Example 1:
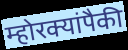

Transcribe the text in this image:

म्होरक्यांपैकी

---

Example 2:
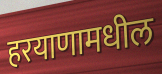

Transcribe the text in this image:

हरयाणामधील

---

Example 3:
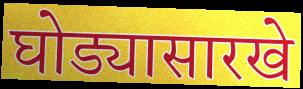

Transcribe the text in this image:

घोड्यासारखे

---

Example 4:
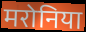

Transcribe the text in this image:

मरोनिया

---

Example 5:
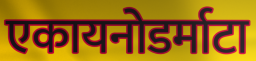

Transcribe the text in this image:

एकायनोडर्माटा